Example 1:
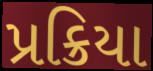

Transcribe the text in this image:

પ્રક્રિયા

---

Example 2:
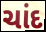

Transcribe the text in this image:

ચાંદ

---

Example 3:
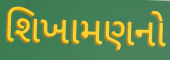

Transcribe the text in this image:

શિખામણનો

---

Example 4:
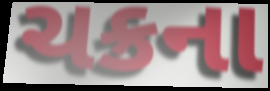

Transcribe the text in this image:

ચક્રના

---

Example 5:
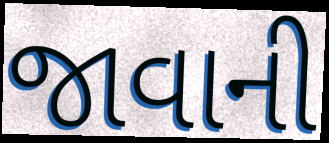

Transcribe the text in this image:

જાવાની